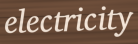
electricity